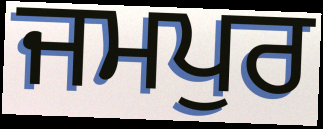
ਜਮਪੁਰ